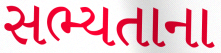
સભ્યતાના